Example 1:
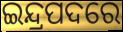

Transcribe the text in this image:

ଇନ୍ଦ୍ରପଦରେ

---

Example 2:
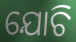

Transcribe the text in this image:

ଯୋଚି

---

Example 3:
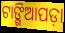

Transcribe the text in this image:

ଟାଙ୍ଗିଆପଡ଼ା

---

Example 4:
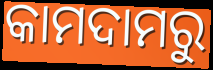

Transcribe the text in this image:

କାମଦାମରୁ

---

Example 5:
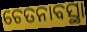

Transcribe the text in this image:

ଚେତନାବସ୍ଥା